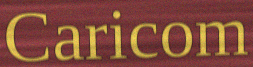
Caricom